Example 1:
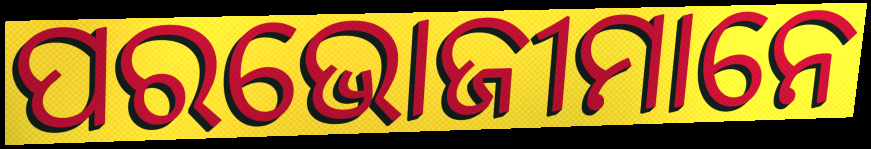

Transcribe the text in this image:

ପରଭୋଜୀମାନେ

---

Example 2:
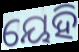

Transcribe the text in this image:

ୟେହି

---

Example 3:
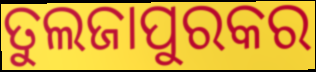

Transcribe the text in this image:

ତୁଲଜାପୁରକର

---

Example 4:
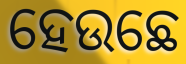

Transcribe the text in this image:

ହେଉଛେ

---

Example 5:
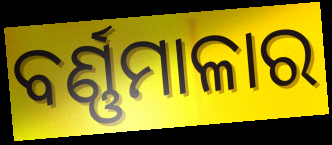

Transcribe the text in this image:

ବର୍ଣ୍ଣମାଳାର